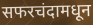
सफरचंदामधून